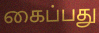
கைப்பது